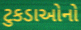
ટુકડાઓનો